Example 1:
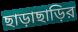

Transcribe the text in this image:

ছাড়াছাড়ির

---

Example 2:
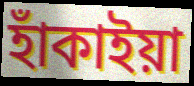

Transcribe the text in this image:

হাঁকাইয়া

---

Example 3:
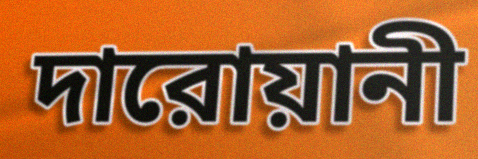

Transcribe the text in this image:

দারোয়ানী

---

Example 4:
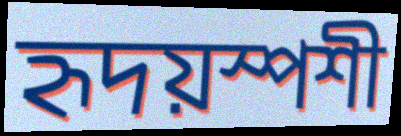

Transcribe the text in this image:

হৃদয়স্পশী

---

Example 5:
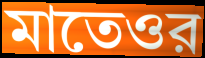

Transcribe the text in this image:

মাতেওর